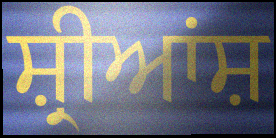
ਸ਼੍ਰੀਆਂਸ਼